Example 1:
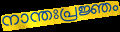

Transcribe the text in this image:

നാന്തഃപ്രജ്ഞം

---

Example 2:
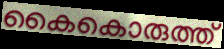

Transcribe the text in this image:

കൈകൊരുത്ത്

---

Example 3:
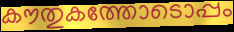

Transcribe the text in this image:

കൗതുകത്തോടൊപ്പം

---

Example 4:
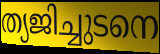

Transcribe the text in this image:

ത്യജിച്ചുടനെ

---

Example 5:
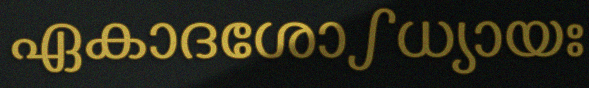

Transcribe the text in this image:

ഏകാദശോഽധ്യായഃ